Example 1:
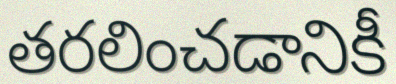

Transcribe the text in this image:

తరలించడానికీ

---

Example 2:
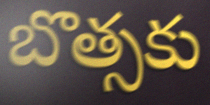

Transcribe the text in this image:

బొత్సకు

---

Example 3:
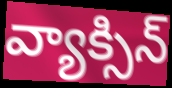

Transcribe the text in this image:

వ్యాక్సిన్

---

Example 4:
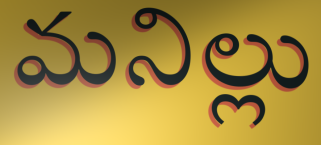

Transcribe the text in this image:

మనిల్లు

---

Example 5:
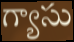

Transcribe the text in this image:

గ్యాసు